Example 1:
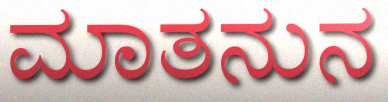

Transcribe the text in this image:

ಮಾತನುನ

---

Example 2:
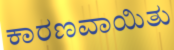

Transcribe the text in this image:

ಕಾರಣವಾಯಿತು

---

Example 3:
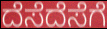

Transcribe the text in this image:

ದೆಸೆದೆಸೆಗೆ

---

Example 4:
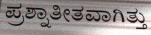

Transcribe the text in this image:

ಪ್ರಶ್ನಾತೀತವಾಗಿತ್ತು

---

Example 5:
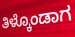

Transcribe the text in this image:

ತಿಳ್ಕೊಂಡಾಗ